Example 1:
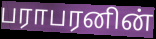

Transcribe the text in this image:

பராபரனின்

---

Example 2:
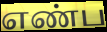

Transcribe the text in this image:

எண்ப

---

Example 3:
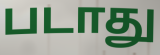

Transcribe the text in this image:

படாது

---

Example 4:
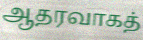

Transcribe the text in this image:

ஆதரவாகத்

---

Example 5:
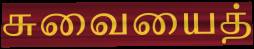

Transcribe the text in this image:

சுவையைத்